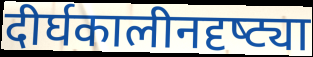
दीर्घकालीनदृष्ट्या